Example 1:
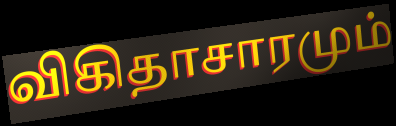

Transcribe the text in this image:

விகிதாசாரமும்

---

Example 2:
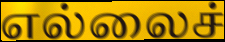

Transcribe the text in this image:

எல்லைச்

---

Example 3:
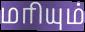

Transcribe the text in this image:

மரியும்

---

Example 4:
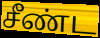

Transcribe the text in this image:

சீண்ட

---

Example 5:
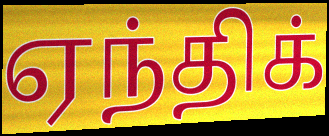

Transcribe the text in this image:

ஏந்திக்